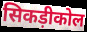
सिकड़ीकोल